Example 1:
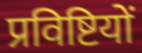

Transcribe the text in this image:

प्रविष्टियों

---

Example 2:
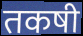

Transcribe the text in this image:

तकषी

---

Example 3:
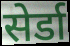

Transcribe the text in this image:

सेर्डा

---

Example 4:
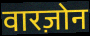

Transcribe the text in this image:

वारज़ोन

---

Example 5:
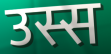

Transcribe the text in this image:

उस्स